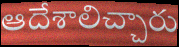
ఆదేశాలిచ్చారు